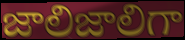
జాలిజాలిగా